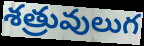
శత్రువులుగ